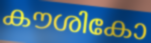
കൗശികോ